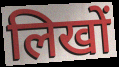
लिखों